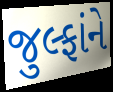
જુલ્ફાંને